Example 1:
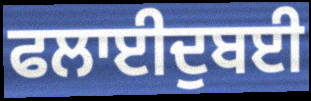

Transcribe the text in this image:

ਫਲਾਈਦੁਬਈ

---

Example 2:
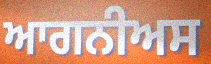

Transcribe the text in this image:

ਆਗਨੀਅਸ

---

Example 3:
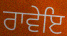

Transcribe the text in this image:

ਰਾਵੇਇ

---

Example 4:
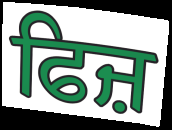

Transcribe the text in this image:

ਫਿਜ਼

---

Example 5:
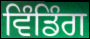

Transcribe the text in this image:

ਵਿੰਡਿੰਗ